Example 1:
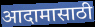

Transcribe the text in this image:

आदामासाठी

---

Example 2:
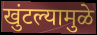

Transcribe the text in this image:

खुंटल्यामुळे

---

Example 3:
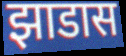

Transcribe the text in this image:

झाडास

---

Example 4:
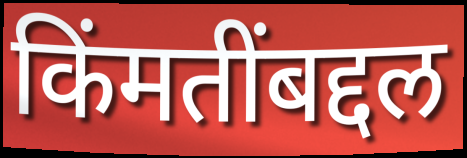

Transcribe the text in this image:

किंमतींबद्दल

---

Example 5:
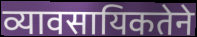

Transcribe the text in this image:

व्यावसायिकतेने